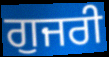
ਗੁਜਰੀ